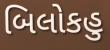
બિલોકહુ